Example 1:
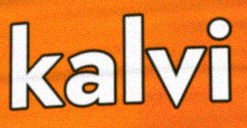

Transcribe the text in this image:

kalvi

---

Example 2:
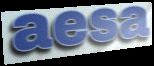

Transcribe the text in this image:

aesa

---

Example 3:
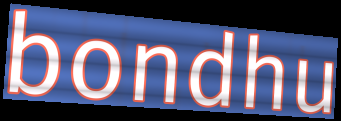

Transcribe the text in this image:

bondhu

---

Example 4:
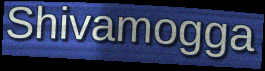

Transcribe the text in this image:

Shivamogga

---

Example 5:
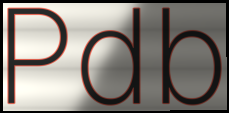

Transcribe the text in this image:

Pdb